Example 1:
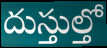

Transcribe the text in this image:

దుస్తుల్తో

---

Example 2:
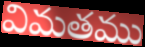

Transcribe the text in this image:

విమతము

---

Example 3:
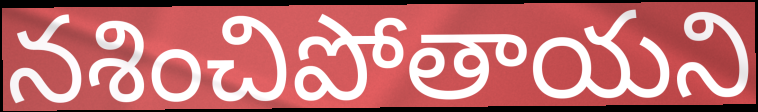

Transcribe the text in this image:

నశించిపోతాయని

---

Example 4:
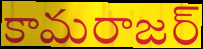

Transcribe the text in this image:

కామరాజర్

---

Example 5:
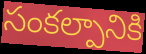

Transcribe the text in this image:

సంకల్పానికి